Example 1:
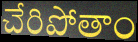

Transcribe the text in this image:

చేరిపోతాం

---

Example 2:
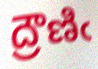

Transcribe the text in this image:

ద్రౌణిఁ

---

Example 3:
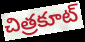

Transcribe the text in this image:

చిత్రకూట్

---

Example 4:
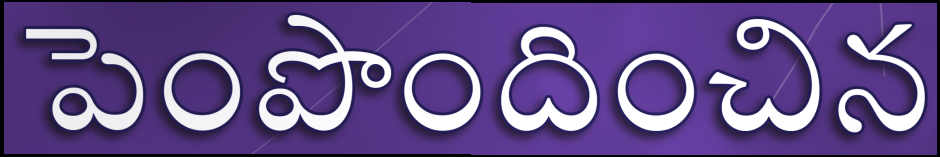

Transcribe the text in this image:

పెంపొందించిన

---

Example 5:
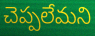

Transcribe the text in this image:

చెప్పలేమని